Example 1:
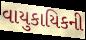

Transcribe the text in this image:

વાયુકાયિકની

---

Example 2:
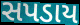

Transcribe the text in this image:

સપડાય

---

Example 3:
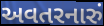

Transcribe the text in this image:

અવતરનારું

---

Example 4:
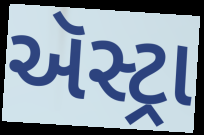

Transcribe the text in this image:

ઍસ્ટ્રા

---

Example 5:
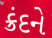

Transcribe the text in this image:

ક્રંદને